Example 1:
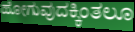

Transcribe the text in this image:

ಹೋಗುವುದಕ್ಕಿಂತಲೂ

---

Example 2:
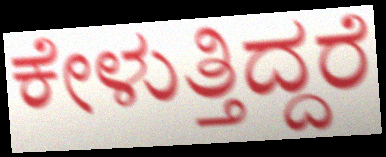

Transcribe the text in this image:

ಕೇಳುತ್ತಿದ್ದರೆ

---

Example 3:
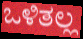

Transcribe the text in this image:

ಒಳಿತಲ್ಲ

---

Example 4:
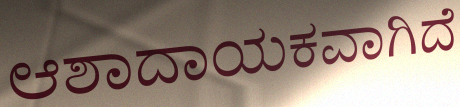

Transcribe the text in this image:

ಆಶಾದಾಯಕವಾಗಿದೆ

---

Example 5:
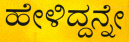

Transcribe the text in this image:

ಹೇಳಿದ್ದನ್ನೇ